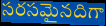
సరసమైనదిగా